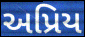
અપ્રિય